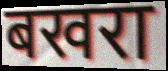
बखरा